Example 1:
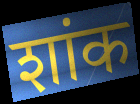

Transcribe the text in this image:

शांक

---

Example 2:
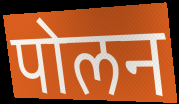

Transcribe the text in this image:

पोलन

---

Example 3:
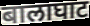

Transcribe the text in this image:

बालाघाट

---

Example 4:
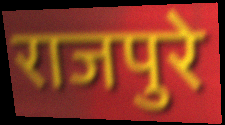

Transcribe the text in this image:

राजपुरे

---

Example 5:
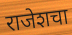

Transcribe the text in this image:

राजेशचा